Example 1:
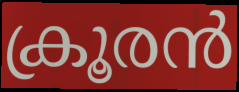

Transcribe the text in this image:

ക്രൂരൻ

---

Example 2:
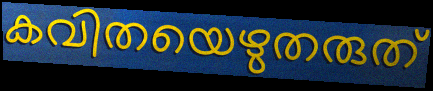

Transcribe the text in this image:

കവിതയെഴുതരുത്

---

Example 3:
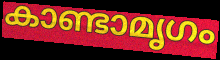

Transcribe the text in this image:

കാണ്ടാമൃഗം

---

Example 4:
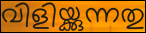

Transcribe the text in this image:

വിളിയ്ക്കുന്നതു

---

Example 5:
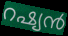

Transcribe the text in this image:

റഷ്യൻ